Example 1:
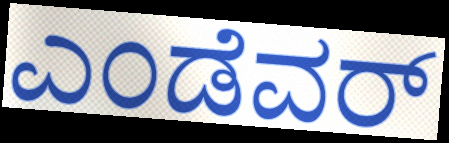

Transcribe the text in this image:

ಎಂಡೆವರ್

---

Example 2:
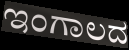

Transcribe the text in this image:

ಇಂಗಾಲದ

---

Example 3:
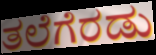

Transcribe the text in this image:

ತಲೆಗೆರಡು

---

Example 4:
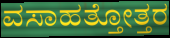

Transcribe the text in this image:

ವಸಾಹತ್ತೋತ್ತರ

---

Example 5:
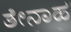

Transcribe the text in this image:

ತೇನಾಹ